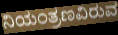
ನಿಯಂತ್ರಣವಿರುವ